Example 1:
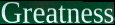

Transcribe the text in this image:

Greatness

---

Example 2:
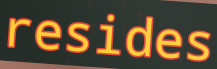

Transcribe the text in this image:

resides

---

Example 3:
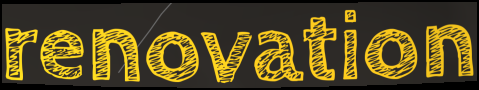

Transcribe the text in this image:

renovation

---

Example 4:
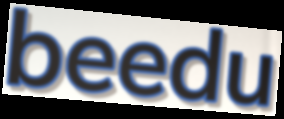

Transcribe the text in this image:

beedu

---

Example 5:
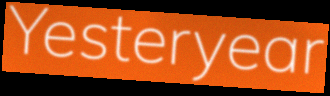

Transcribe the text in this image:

Yesteryear